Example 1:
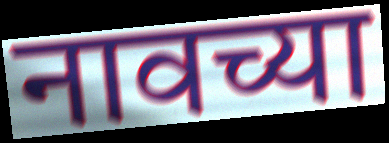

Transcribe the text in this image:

नावच्या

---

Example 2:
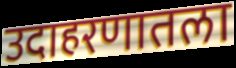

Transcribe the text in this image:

उदाहरणातला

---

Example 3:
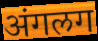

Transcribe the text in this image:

अंगलग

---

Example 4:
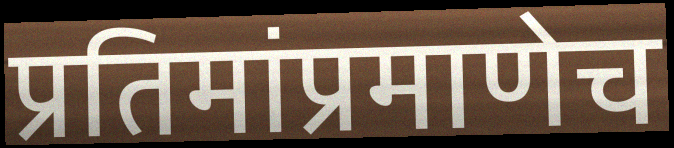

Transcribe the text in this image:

प्रतिमांप्रमाणेच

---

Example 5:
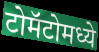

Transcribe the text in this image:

टोमॅटोमध्ये